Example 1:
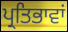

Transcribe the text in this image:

ਪ੍ਰਤਿਭਾਵਾਂ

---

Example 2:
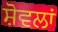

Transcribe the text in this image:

ਸ਼ੋਵਲਾਂ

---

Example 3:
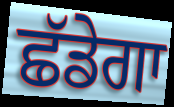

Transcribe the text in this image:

ਛੱਡੇਗਾ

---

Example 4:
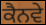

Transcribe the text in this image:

ਕੈਨਵੇ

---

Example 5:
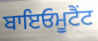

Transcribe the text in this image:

ਬਾਇਓਮੂਟੈਂਟ